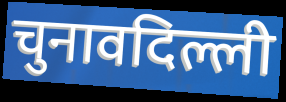
चुनावदिल्ली